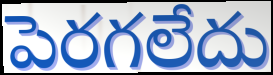
పెరగలేదు